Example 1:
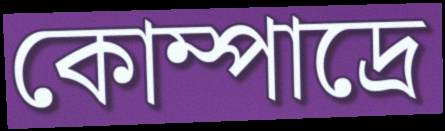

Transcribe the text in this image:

কোম্পাদ্রে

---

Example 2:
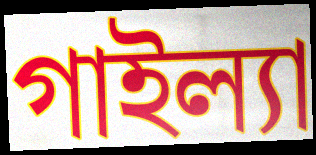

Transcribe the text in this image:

গাইল্যা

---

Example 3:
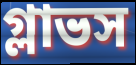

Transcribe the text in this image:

গ্লাভস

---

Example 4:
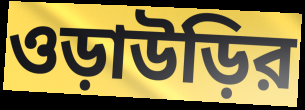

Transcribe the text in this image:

ওড়াউড়ির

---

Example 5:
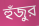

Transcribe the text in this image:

হুঁজুর